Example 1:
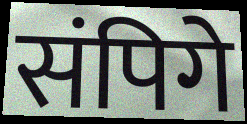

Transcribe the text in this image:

संपिगे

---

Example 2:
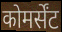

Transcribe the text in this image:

कोमर्सेंट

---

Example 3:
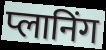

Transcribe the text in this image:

प्‍लानिंग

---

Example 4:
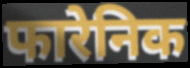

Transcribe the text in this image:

फारेनिक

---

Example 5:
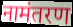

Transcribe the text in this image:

नामंतरण